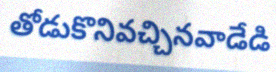
తోడుకొనివచ్చినవాడేడి